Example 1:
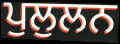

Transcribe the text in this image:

ਪੁਲੁਲਨ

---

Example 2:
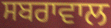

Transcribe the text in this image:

ਸਬਰਾਵਾਲ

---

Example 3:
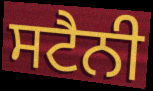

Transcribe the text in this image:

ਸਟੈਨੀ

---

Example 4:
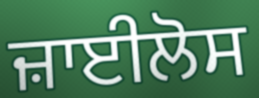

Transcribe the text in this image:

ਜ਼ਾਈਲੋਸ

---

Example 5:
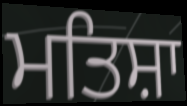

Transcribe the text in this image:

ਮਤਿਸ਼ਾ